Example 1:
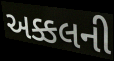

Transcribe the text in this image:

અક્કલની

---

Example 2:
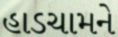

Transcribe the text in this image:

હાડચામને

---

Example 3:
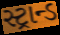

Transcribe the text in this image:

સ્ટ્રાન્ડ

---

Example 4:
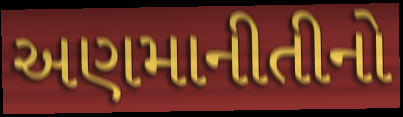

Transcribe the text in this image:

અણમાનીતીનો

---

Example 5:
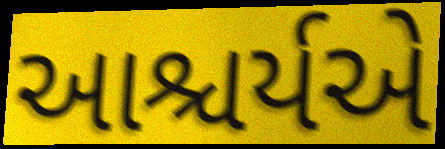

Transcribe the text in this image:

આશ્ચર્યએ